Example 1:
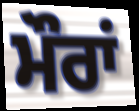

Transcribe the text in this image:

ਮੌਰਾਂ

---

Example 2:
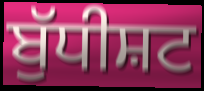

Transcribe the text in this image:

ਬੁੱਧੀਸ਼ਟ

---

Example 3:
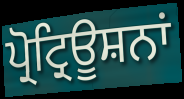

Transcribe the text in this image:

ਪ੍ਰੋਟ੍ਰਿਊਸ਼ਨਾਂ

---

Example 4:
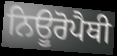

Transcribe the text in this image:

ਨਿਊਰੋਪੈਥੀ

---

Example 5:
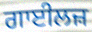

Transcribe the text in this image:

ਗਾਈਲਜ਼